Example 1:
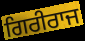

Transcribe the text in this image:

ਗਿਰੀਰਾਜ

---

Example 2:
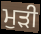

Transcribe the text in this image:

ਮੁੜੀ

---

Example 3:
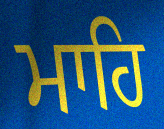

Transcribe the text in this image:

ਮਾਹਿ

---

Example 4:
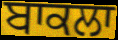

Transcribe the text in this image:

ਬਾਕਲਾ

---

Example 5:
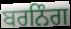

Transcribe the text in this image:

ਬਰਨਿੰਗ